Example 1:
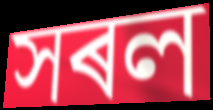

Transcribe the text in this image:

সৰল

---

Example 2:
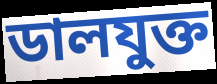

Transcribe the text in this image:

ডালযুক্ত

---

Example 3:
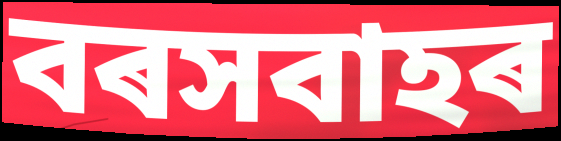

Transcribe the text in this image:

বৰসবাহৰ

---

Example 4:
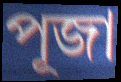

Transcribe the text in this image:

পূজা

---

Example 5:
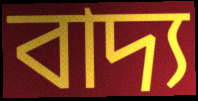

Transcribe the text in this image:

বাদ্য